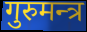
गुरुमन्त्र